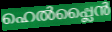
ഹെൽപ്പ്ലൈൻ